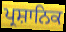
ਪ੍ਰਸ਼ਾਨਿਕ